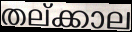
തല്ക്കാല